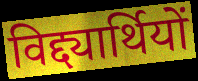
विद्द्यार्थियों